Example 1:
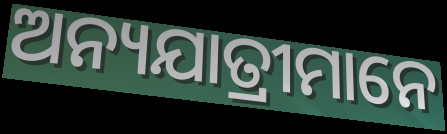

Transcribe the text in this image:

ଅନ୍ୟଯାତ୍ରୀମାନେ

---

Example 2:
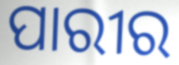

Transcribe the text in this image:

ପାରୀର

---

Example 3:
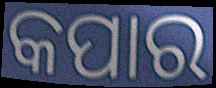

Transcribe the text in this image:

କପାର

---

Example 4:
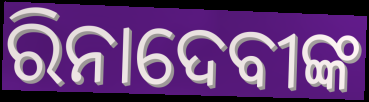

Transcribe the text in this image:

ରିନାଦେବୀଙ୍କ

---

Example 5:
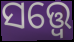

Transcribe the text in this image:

ସତ୍ତ୍ବେ